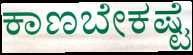
ಕಾಣಬೇಕಷ್ಟೆ